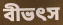
বীভৎস